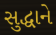
સુદ્ધાને